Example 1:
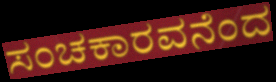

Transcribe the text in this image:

ಸಂಚಕಾರವನೆಂದ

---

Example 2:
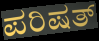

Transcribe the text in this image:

ಪರಿಷತ್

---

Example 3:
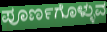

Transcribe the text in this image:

ಪೂರ್ಣಗೊಳ್ಳುವ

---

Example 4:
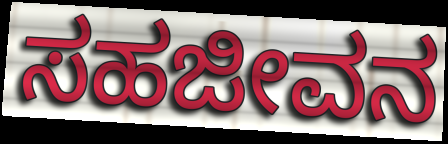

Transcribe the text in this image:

ಸಹಜೀವನ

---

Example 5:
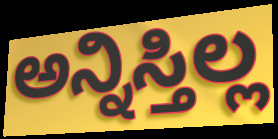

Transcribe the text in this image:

ಅನ್ನಿಸ್ತಿಲ್ಲ